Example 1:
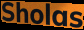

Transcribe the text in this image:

Sholas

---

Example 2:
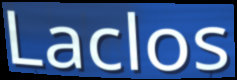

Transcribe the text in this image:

Laclos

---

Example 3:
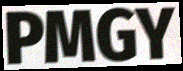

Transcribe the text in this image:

PMGY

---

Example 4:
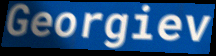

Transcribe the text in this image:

Georgiev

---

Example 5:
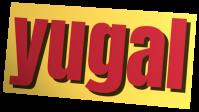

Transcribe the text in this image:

yugal